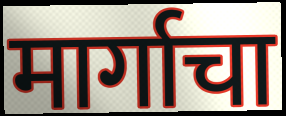
मार्गाचा